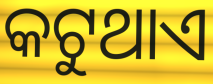
କଟୁଥାଏ